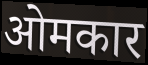
ओमकार